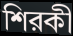
শিরকী